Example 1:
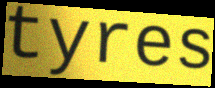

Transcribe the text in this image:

tyres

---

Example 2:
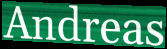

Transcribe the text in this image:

Andreas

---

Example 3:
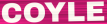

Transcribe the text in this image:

COYLE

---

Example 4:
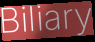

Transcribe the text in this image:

Biliary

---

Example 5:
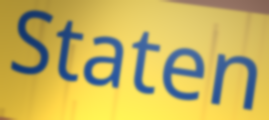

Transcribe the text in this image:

Staten